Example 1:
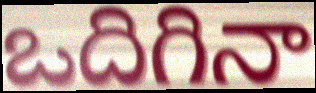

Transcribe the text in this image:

ఒదిగినా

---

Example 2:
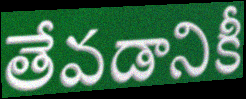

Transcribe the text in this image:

తేవడానికీ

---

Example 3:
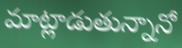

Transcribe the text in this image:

మాట్లాడుతున్నానో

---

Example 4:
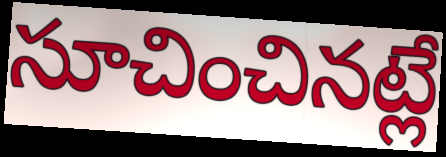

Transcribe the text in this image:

సూచించినట్లే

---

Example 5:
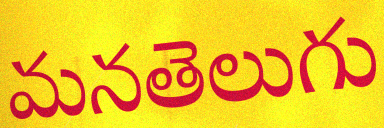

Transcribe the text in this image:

మనతెలుగు